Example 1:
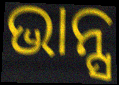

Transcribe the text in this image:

ଭାନ୍ସ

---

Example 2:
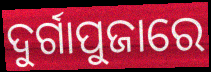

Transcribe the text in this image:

ଦୁର୍ଗାପୁଜାରେ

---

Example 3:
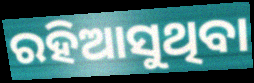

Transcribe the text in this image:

ରହିଆସୁଥିବା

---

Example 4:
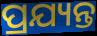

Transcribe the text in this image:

ପ୍ରଯ୍ୟନ୍ତ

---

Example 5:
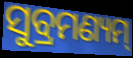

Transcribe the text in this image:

ସୁବ୍ରମଣ୍ୟମ୍